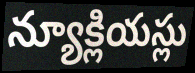
న్యూక్లియస్లు